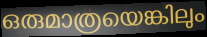
ഒരുമാത്രയെങ്കിലും